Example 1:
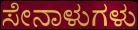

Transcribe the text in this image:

ಸೇನಾಳುಗಳು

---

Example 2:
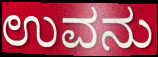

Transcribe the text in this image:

ಉವನು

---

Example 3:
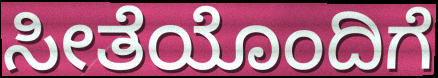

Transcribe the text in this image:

ಸೀತೆಯೊಂದಿಗೆ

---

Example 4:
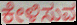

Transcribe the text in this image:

ಕೇಳಿಸುವ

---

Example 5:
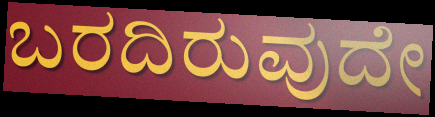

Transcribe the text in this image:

ಬರದಿರುವುದೇ